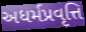
અધર્મપ્રવૃત્તિ